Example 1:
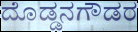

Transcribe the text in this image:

ದೊಡ್ಡನಗೌಡರ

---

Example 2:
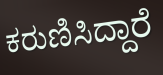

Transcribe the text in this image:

ಕರುಣಿಸಿದ್ದಾರೆ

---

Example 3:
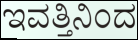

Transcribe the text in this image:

ಇವತ್ತಿನಿಂದ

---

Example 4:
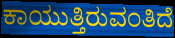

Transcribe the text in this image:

ಕಾಯುತ್ತಿರುವಂತಿದೆ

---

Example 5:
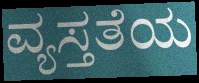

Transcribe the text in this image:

ವ್ಯಸ್ತತೆಯ